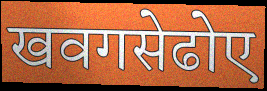
खवगसेढोए